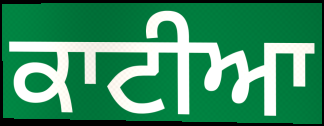
ਕਾਟੀਆ